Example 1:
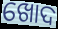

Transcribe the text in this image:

ଖୋଦ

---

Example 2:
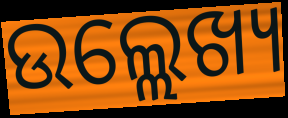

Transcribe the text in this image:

ଉଲ୍ଲେଖ୍ୟ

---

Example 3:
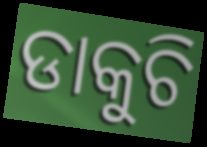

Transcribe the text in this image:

ଡାକୁଚି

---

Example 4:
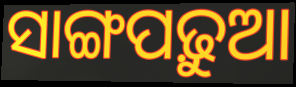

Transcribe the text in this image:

ସାଙ୍ଗପଢ଼ୁଆ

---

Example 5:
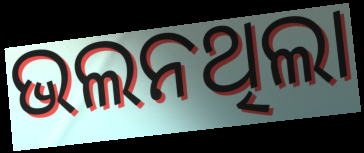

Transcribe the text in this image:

ଭଲନଥିଲା